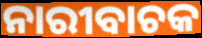
ନାରୀବାଚକ